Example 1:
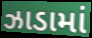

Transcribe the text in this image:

ઝાડામાં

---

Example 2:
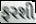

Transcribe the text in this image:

ફરશી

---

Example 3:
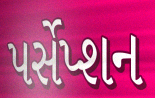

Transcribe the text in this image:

પર્સેપ્શન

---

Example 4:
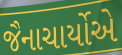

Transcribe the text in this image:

જૈનાચાર્યોએ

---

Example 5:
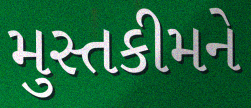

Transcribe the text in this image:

મુસ્તકીમને